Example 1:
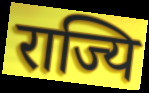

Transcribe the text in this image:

राज्यि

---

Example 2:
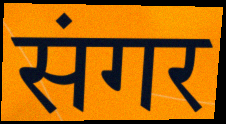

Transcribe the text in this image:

संगर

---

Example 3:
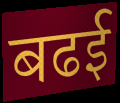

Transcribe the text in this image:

बढई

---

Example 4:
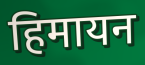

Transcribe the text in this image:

हिमायन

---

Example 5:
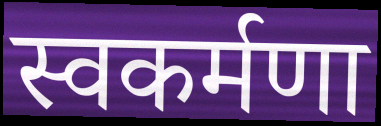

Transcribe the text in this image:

स्वकर्मणा